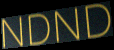
NDND